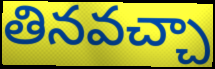
తినవచ్చా